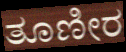
ತೂಣೀರ